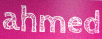
ahmed